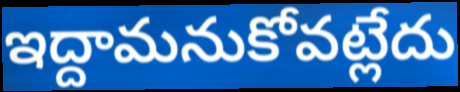
ఇద్దామనుకోవట్లేదు